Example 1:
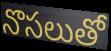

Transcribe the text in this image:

నొసలుతో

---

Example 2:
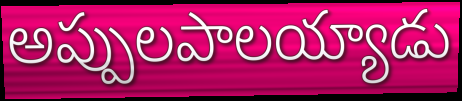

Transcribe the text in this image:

అప్పులపాలయ్యాడు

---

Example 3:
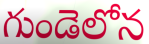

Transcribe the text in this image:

గుండెలోన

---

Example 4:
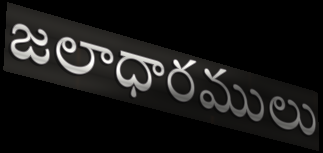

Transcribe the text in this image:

జలాధారములు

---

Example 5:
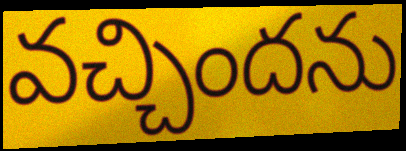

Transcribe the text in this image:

వచ్చిందను